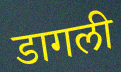
डागली